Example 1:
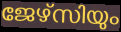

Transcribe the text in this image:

ജേഴ്സിയും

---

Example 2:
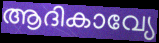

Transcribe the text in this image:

ആദികാവ്യേ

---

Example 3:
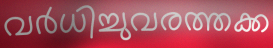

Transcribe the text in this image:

വർധിച്ചുവരത്തക്ക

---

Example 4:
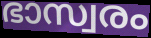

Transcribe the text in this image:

ഭാസ്വരം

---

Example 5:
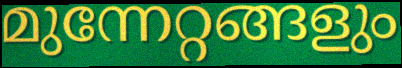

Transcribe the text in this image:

മുന്നേറ്റങ്ങളും